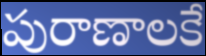
పురాణాలకే